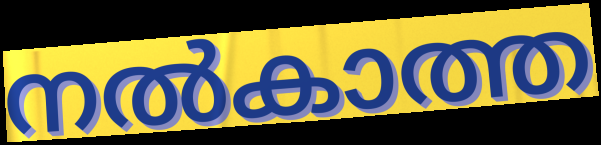
നൽകാത്ത